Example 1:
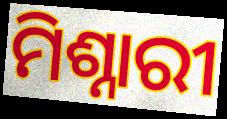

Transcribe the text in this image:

ମିଶ୍ନାରୀ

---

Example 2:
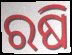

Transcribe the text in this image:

ରଷି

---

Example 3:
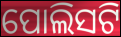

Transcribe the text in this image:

ପୋଲିସଟି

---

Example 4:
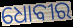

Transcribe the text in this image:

ଧୋବୀର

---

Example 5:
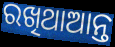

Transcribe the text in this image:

ରଖିଥାଆନ୍ତ